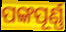
ପଙ୍କପୂର୍ଣ୍ଣ